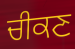
ਚੀਕਣ